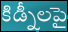
కిడ్నీలపై